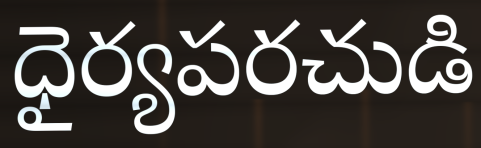
ధైర్యపరచుడి